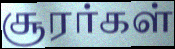
சூரர்கள்